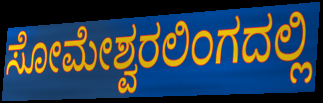
ಸೋಮೇಶ್ವರಲಿಂಗದಲ್ಲಿ